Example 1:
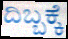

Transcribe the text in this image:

ದಿಬ್ಬಕ್ಕೆ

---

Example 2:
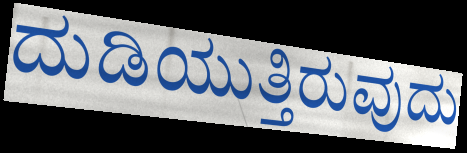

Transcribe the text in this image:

ದುಡಿಯುತ್ತಿರುವುದು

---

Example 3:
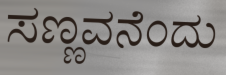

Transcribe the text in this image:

ಸಣ್ಣವನೆಂದು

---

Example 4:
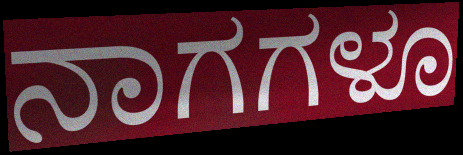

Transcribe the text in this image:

ನಾಗಗಳೂ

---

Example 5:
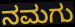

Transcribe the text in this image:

ನಮಗು